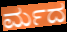
ರ್ಮದ